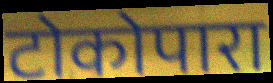
टोकोपारा